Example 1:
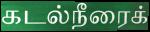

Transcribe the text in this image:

கடல்நீரைக்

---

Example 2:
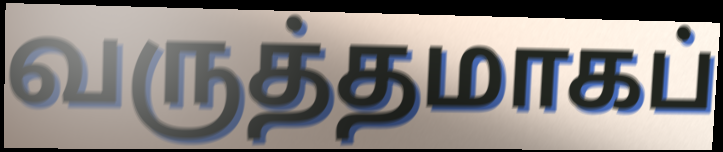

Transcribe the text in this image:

வருத்தமாகப்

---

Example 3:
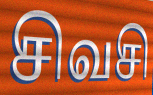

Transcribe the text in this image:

சிவசி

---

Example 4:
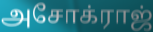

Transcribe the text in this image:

அசோக்ராஜ்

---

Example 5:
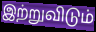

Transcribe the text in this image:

இற்றுவிடும்